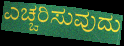
ಎಚ್ಚರಿಸುವುದು